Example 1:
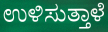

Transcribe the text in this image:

ಉಳಿಸುತ್ತಾಳೆ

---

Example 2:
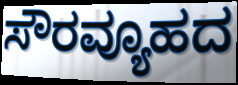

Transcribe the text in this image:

ಸೌರವ್ಯೂಹದ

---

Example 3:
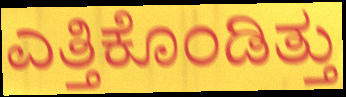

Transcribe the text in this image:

ಎತ್ತಿಕೊಂಡಿತ್ತು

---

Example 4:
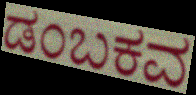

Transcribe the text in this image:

ಡಂಬಕವ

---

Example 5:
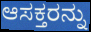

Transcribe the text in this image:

ಆಸಕ್ತರನ್ನು